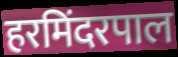
हरमिंदरपाल